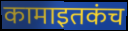
कामाइतकंच